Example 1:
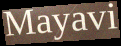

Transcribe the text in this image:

Mayavi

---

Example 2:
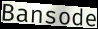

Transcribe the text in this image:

Bansode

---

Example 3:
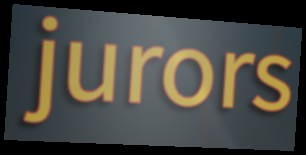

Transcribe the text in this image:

jurors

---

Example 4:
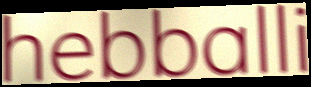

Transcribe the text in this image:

hebballi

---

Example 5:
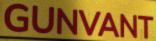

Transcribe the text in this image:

GUNVANT